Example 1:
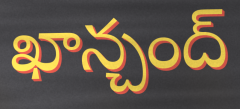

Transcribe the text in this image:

ఖాన్చంద్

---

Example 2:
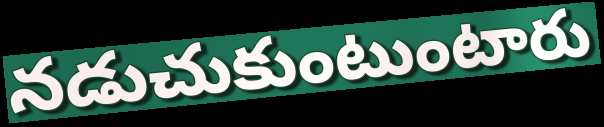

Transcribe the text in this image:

నడుచుకుంటుంటారు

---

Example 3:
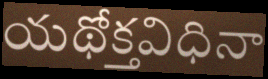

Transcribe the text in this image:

యథోక్తవిధినా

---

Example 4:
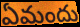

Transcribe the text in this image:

ఏమందు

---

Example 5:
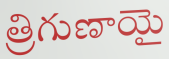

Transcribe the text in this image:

త్రిగుణాయై